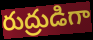
రుద్రుడిగా